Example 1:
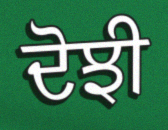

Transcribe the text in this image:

ਦੋਝੀ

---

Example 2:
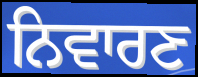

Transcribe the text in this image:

ਨਿਵਾਰਣ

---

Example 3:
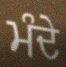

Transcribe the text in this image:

ਮੰਦੇ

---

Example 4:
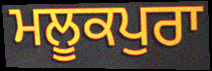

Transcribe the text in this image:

ਮਲੂਕਪੁਰਾ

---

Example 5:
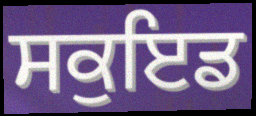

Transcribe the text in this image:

ਸਕੁਇਡ